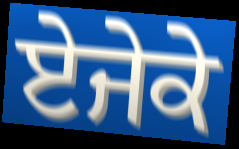
ਏਜੇਕੇ